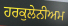
ਹਰਕੁਲੇਨੀਅਮ